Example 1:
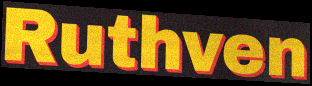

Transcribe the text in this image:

Ruthven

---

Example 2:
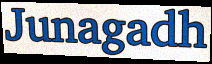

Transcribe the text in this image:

Junagadh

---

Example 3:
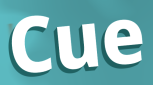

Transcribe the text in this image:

Cue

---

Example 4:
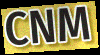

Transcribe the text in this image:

CNM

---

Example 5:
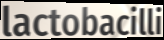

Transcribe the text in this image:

lactobacilli